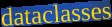
dataclasses